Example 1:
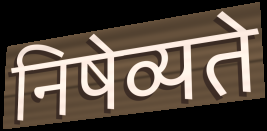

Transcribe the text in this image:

निषेव्यते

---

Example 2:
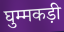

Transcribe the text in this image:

घुम्मकड़ी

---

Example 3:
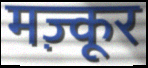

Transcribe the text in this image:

मज़्कूर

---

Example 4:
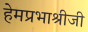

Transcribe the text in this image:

हेमप्रभाश्रीजी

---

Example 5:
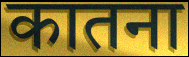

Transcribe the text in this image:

कातना